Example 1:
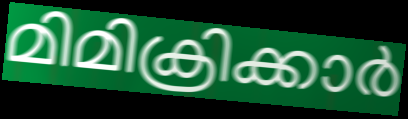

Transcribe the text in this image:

മിമിക്രിക്കാർ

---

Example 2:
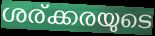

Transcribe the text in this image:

ശര്ക്കരയുടെ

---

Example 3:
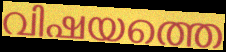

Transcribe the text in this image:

വിഷയത്തെ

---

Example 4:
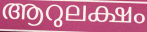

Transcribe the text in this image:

ആറുലക്ഷം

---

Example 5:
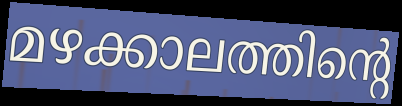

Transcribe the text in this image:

മഴക്കാലത്തിന്റെ